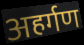
अहर्गण